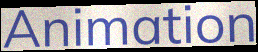
Animation